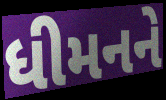
ધીમનને